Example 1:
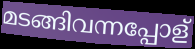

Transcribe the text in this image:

മടങ്ങിവന്നപ്പോള്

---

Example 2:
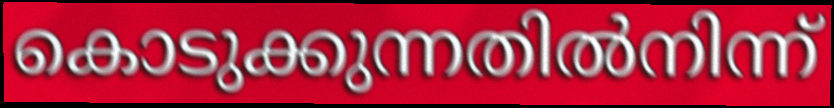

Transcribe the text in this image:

കൊടുക്കുന്നതിൽനിന്ന്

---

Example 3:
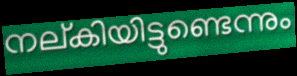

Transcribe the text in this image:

നല്കിയിട്ടുണ്ടെന്നും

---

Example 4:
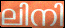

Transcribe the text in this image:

ലിനി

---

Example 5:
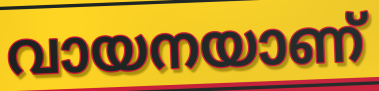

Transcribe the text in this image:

വായനയാണ്